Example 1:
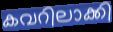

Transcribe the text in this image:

കവറിലാക്കി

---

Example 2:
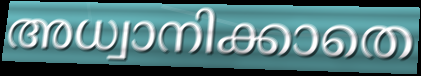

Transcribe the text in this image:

അധ്വാനിക്കാതെ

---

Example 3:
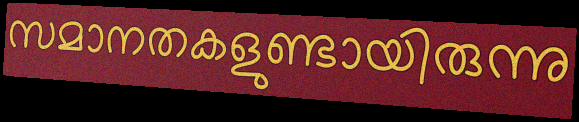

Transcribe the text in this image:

സമാനതകളുണ്ടായിരുന്നു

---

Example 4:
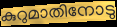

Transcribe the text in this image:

കുറുമാതിനോടു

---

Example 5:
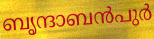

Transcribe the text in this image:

ബൃന്ദാബൻപുർ